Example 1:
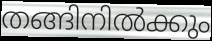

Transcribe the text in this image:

തങ്ങിനിൽക്കും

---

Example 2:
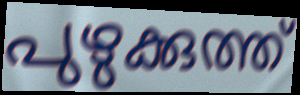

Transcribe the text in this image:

പുഴുക്കുത്ത്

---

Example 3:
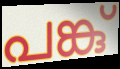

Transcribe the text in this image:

പങ്കു്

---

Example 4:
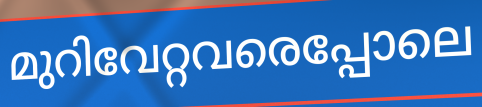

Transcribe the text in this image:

മുറിവേറ്റവരെപ്പോലെ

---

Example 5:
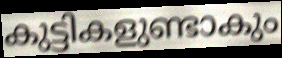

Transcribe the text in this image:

കുട്ടികളുണ്ടാകും